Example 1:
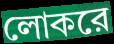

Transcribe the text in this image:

লোকরে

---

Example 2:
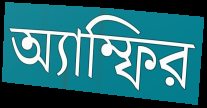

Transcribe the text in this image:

অ্যাম্ফির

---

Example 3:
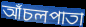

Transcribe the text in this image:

আঁচলপাতা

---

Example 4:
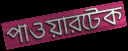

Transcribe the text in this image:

পাওয়ারটেক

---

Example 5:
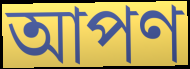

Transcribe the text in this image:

আপণ